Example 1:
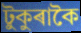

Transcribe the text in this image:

টুকুৰাকৈ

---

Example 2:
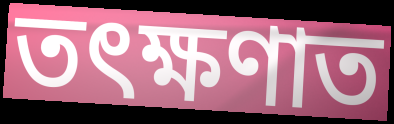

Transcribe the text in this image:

তৎক্ষণাত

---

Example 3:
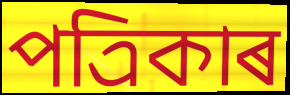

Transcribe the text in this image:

পত্ৰিকাৰ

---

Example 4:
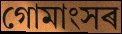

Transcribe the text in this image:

গোমাংসৰ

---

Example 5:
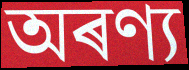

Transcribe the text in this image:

অৰণ্য